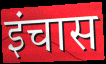
इंचास